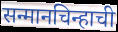
सन्मानचिन्हाची